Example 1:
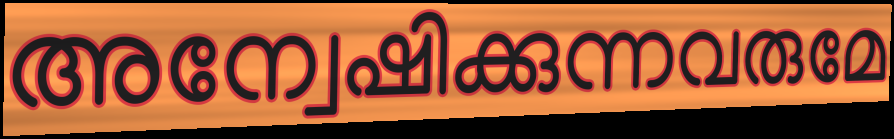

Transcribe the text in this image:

അന്വേഷിക്കുന്നവരുമേ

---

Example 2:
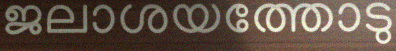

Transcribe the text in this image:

ജലാശയത്തോടു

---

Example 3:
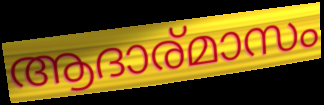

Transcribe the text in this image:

ആദാര്മാസം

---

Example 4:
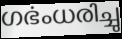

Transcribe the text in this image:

ഗൎഭംധരിച്ചു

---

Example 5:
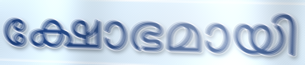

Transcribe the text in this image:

ക്ഷോഭമായി